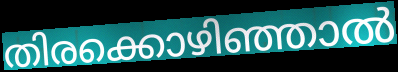
തിരക്കൊഴിഞ്ഞാൽ